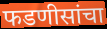
फडणीसांचा